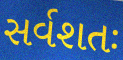
સર્વશતઃ